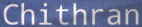
Chithran